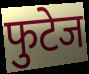
फुटेज